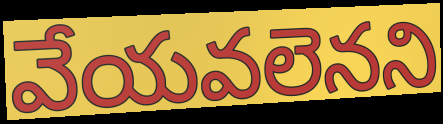
వేయవలెనని